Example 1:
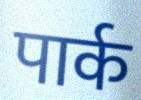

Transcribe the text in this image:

पार्क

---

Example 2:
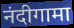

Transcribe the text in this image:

नंदीगामा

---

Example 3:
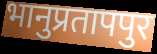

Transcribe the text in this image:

भानुप्रतापपुर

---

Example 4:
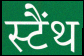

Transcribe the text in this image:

स्टैंथ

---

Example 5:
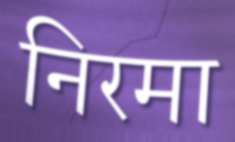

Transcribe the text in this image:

निरमा